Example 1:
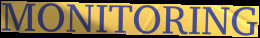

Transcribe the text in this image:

MONITORING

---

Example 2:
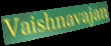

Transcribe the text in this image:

Vaishnavajan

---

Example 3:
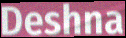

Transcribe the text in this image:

Deshna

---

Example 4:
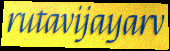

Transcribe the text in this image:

rutavijayarv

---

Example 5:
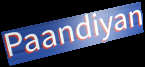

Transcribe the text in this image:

Paandiyan